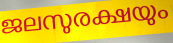
ജലസുരക്ഷയും